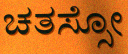
ಚತಸ್ಸೋ